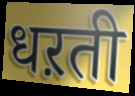
धऱती